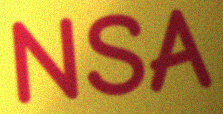
NSA